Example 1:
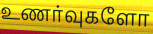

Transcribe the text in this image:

உணர்வுகளோ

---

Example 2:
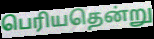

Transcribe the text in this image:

பெரியதென்று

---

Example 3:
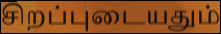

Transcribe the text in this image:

சிறப்புடையதும்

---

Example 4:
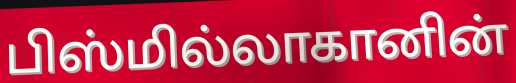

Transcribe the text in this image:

பிஸ்மில்லாகானின்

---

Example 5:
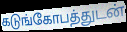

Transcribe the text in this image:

கடுங்கோபத்துடன்